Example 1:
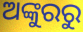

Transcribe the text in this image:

ଅଙ୍କୁରରୁ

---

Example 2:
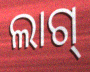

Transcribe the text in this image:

ଲାଗ୍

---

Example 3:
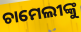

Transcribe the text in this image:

ଚାମେଲୀଙ୍କୁ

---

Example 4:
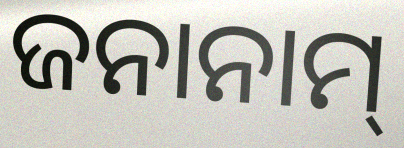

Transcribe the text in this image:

ଜନାନାମ୍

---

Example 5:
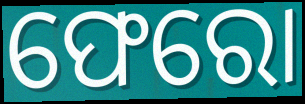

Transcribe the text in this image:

ଫେରୋ